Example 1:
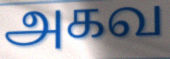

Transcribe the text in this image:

அகவ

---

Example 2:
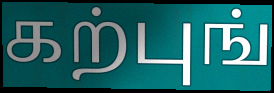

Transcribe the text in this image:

கற்புங்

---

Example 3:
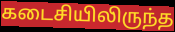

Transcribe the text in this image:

கடைசியிலிருந்த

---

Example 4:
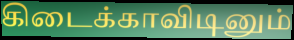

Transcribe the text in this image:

கிடைக்காவிடினும்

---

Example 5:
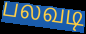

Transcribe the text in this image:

பலவடி